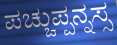
ಪಚ್ಚುಪ್ಪನ್ನಸ್ಸ